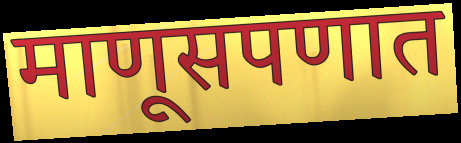
माणूसपणात